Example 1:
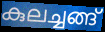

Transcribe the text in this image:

കുലച്ചങ്ങ്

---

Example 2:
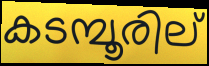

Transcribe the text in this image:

കടമ്പൂരില്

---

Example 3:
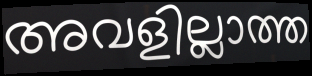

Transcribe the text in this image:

അവളില്ലാത്ത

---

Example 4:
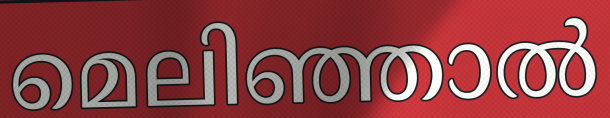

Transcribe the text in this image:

മെലിഞ്ഞാൽ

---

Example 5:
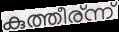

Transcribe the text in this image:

കുത്തീര്ന്ന്